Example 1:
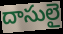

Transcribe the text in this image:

దాసులై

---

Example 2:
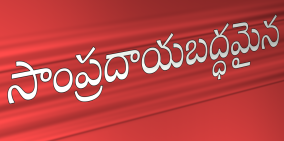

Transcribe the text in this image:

సాంప్రదాయబద్ధమైన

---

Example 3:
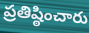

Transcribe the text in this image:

ప్రతిష్ఠించారు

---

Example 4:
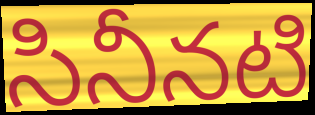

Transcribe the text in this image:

సినీనటి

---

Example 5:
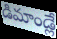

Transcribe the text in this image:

డిమాండ్లే